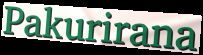
Pakurirana